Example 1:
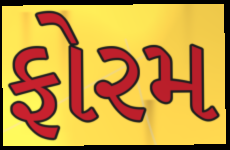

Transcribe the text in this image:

ફોરમ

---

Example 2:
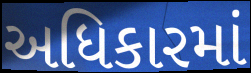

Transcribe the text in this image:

અધિકારમાં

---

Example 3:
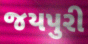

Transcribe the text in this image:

જયપુરી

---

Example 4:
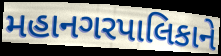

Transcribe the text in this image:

મહાનગરપાલિકાને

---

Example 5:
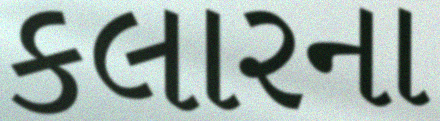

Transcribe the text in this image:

કલારના